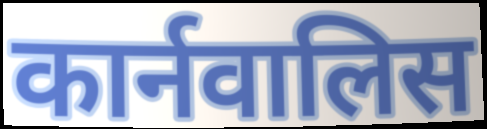
कार्नवालिस